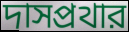
দাসপ্রথার